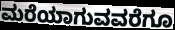
ಮರೆಯಾಗುವವರೆಗೂ